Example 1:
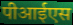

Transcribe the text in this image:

पीआईएस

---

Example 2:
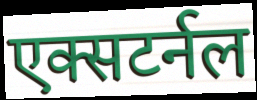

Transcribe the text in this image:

एक्सटर्नल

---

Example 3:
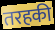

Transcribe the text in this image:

तरहकी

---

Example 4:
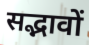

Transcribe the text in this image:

सद्भावों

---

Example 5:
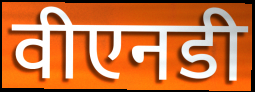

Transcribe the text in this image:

वीएनडी